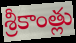
శ్రీకాంత్లు